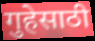
गुहेसाठी